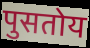
पुसतोय